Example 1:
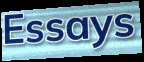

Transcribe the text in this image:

Essays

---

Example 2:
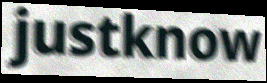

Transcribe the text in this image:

justknow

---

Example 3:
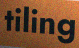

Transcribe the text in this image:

tiling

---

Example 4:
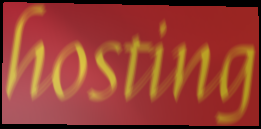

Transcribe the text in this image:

hosting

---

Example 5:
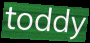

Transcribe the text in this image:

toddy